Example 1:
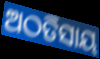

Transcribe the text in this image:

ଅଠତିସାୟ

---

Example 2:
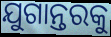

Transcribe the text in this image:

ଯୁଗାନ୍ତରକୁ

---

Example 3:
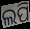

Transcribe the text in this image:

ଲପି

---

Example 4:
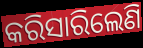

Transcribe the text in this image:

କରିସାରିଲେଣି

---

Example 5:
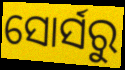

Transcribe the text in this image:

ସୋର୍ସରୁ